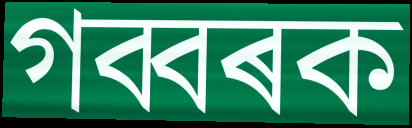
গব্বৰক